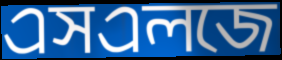
এসএলজে